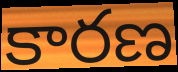
కారణ